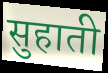
सुहाती